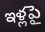
ఇళ్లపై